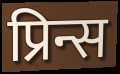
प्रिन्स